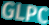
GLPC